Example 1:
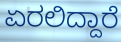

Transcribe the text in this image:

ಏರಲಿದ್ದಾರೆ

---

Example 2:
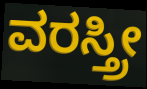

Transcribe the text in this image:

ವರಸ್ತ್ರೀ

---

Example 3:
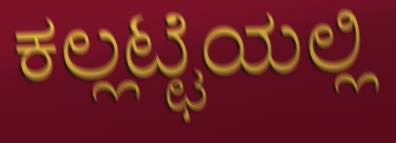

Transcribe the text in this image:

ಕಲ್ಲಟ್ಟೆಯಲ್ಲಿ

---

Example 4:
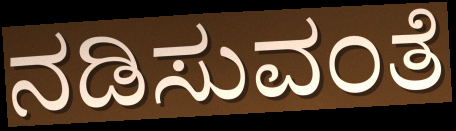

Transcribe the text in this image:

ನಡಿಸುವಂತೆ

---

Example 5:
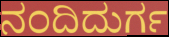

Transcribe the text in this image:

ನಂದಿದುರ್ಗ